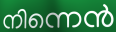
നിന്നെൻ